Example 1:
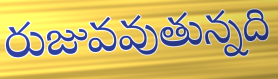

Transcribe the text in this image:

రుజువవుతున్నది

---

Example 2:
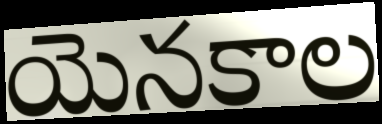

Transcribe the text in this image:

యెనకాల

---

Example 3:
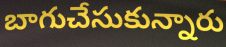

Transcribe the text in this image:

బాగుచేసుకున్నారు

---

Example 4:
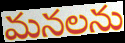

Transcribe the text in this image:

మనలను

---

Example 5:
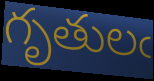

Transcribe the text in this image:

గృతులఁ